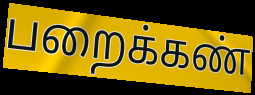
பறைக்கண்